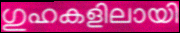
ഗുഹകളിലായി